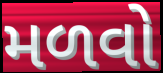
મળવો